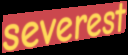
severest